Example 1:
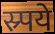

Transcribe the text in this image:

स्र्पये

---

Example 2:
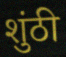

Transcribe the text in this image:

शुंठी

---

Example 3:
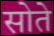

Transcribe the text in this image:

सोते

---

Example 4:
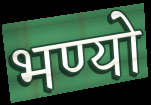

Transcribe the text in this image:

भण्यो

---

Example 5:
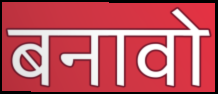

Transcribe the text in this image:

बनावो